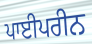
ਪਾਈਪਰੀਨ